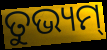
ତୁଭ୍ୟମ୍